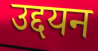
उद्दयन